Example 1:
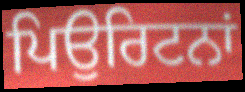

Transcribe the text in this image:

ਪਿਉਰਿਟਨਾਂ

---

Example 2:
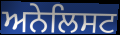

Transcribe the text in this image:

ਅਨੇਲਿਸਟ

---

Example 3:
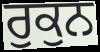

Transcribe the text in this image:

ਰੁਕੁਨ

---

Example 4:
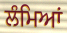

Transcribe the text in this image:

ਲੰਮਿਆਂ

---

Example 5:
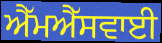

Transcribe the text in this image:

ਐੱਮਐੱਸਵਾਈ